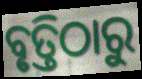
ବୃତ୍ତିଠାରୁ